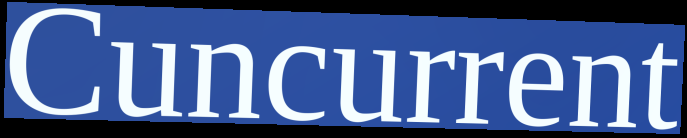
Cuncurrent